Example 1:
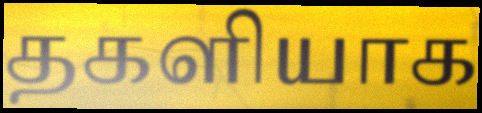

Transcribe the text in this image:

தகளியாக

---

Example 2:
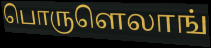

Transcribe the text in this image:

பொருளெலாங்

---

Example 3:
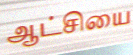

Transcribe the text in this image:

ஆட்சியை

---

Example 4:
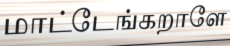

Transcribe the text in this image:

மாட்டேங்கறாளே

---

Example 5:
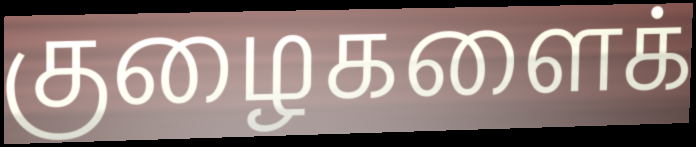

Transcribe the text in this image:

குழைகளைக்